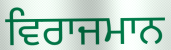
ਵਿਰਾਜਮਾਨ